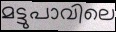
മട്ടുപാവിലെ